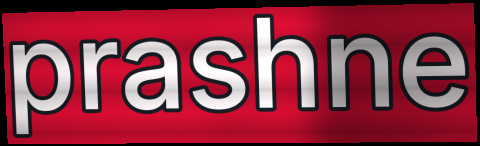
prashne